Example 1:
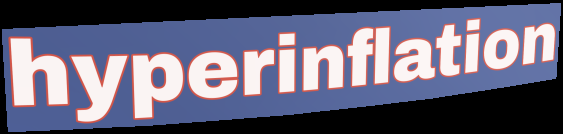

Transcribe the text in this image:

hyperinflation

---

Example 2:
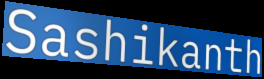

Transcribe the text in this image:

Sashikanth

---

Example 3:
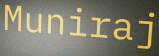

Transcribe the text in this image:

Muniraj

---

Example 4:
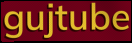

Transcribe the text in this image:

gujtube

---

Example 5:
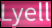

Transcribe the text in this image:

Lyell